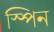
স্পিন